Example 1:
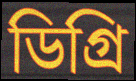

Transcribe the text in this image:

ডিগ্ৰি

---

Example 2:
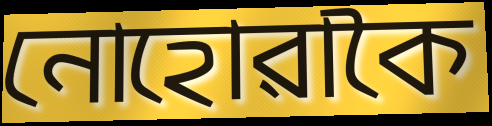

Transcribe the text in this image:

নোহোৱাকৈ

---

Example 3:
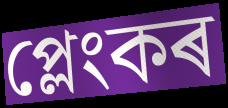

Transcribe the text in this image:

প্লেংকৰ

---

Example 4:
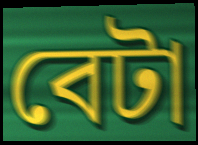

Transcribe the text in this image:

বেটা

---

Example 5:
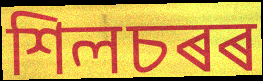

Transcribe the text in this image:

শিলচৰৰ